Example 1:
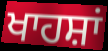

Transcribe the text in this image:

ਖਾਹਸ਼ਾਂ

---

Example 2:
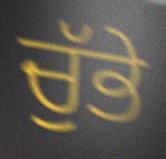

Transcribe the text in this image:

ਚੁੱਭੇ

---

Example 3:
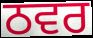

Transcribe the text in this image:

ਠਵਰ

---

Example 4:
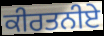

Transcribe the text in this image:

ਕੀਰਤਨੀਏ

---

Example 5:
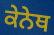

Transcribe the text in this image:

ਕੇਨੇਥ